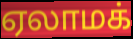
ஏலாமக்